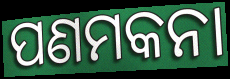
ପଣମକନା